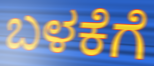
ಬಳಕೆಗೆ